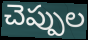
చెప్పుల